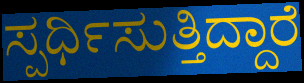
ಸ್ಪರ್ಧಿಸುತ್ತಿದ್ದಾರೆ